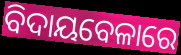
ବିଦାୟବେଳାରେ